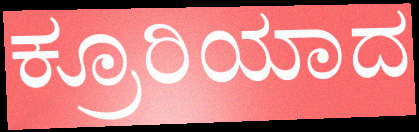
ಕ್ರೂರಿಯಾದ